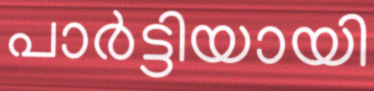
പാർട്ടിയായി